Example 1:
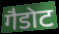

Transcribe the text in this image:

गैडोट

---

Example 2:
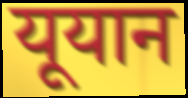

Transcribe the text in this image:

यूयान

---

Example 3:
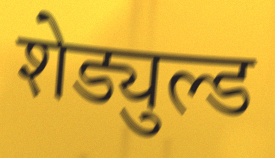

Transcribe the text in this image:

शेड्युल्ड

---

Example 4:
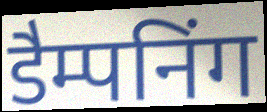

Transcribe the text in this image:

डैम्पनिंग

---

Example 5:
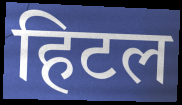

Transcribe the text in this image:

हिटल